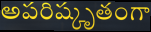
అపరిష్కృతంగా